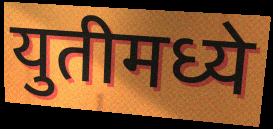
युतीमध्ये